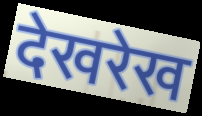
देखरेख